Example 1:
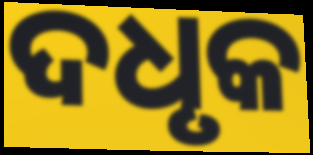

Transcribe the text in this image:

ଦଧୃକ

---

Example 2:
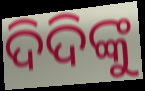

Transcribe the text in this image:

ଦିଦିଙ୍କୁ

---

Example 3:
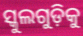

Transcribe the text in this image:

ସ୍କୁଲଗୁଡ଼ିକୁ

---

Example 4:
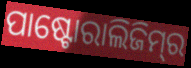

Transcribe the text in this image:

ପାଷ୍ଟୋରାଲିଜିମ୍‌ର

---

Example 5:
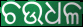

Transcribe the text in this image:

ଚଉଧଳ